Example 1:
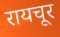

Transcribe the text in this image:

रायचूर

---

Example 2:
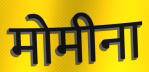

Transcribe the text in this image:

मोमीना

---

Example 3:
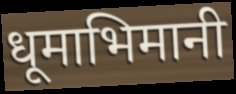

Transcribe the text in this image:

धूमाभिमानी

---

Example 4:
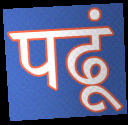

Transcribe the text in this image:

पढूं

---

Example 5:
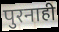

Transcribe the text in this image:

पुरनाही